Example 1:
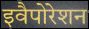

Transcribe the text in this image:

इवैपोरेशन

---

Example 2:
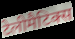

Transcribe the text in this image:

टेलीमैटिक्स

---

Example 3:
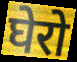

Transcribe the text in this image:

घेरो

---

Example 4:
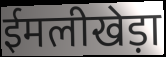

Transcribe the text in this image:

ईमलीखेड़ा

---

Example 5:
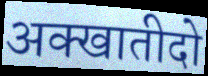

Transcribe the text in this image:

अक्खातीदो